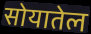
सोयातेल